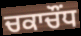
ਚਕਾਚੌਂਧ